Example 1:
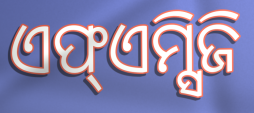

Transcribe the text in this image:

ଏଫ୍ଏମ୍ସିଜି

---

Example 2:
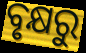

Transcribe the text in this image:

ବୃକ୍ଷରୁ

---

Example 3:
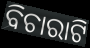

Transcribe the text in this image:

ବିଚାରାଟି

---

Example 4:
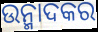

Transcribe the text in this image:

ଉନ୍ମାଦକର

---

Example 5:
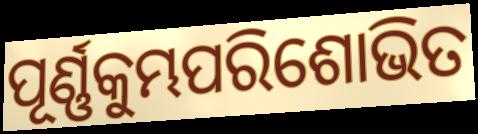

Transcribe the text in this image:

ପୂର୍ଣ୍ଣକୁମ୍ଭପରିଶୋଭିତ